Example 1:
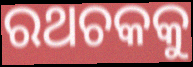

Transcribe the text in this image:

ରଥଚକକୁ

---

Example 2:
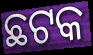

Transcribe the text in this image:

ଛଟକ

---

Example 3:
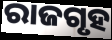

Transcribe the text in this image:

ରାଜଗୃହ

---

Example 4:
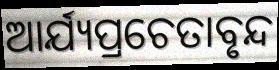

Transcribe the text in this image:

ଆର୍ଯ୍ୟପ୍ରଚେତାବୃନ୍ଦ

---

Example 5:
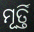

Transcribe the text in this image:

ମୂର୍ତ୍ତି